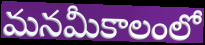
మనమీకాలంలో